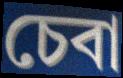
চেবা